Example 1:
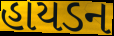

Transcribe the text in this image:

હાયડન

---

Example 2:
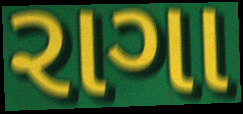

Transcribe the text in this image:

રાગા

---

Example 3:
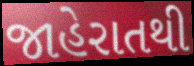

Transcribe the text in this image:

જાહેરાતથી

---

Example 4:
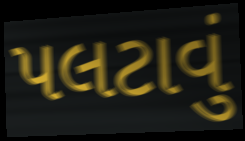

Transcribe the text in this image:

પલટાવું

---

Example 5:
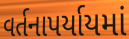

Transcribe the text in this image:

વર્તનાપર્યાયમાં